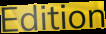
Edition